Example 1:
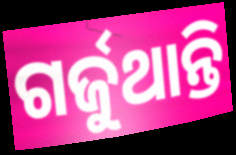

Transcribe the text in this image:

ଗର୍ଜୁଥାନ୍ତି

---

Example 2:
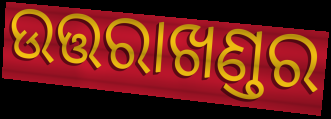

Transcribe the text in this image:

ଉତ୍ତରାଖଣ୍ଡର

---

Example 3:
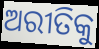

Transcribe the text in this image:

ଅରୀତିକୁ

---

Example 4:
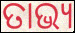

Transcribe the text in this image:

ତାଭ୍ୟ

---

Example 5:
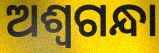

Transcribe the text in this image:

ଅଶ୍ୱଗନ୍ଧା